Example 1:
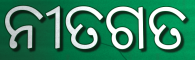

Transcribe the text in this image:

ନୀତଗତ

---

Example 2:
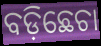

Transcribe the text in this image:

ବଡ଼ିଛେଚା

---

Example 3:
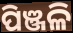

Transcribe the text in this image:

ପିଞ୍ଜଳି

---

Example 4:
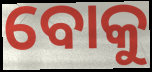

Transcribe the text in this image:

ବୋକୁ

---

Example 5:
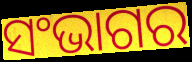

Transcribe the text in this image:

ସଂଭାଗର